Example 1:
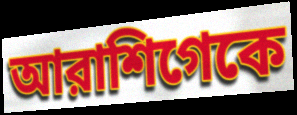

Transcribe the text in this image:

আরাশিগেকে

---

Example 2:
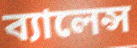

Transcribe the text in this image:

ব্যালেন্স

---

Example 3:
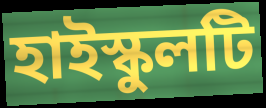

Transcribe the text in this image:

হাইস্কুলটি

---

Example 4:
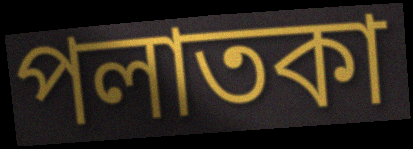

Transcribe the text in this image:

পলাতকা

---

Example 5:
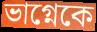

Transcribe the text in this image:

ভাগ্নেকে